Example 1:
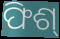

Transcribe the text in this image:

ଫିଶ୍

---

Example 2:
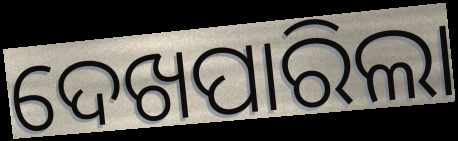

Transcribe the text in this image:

ଦେଖପାରିଲା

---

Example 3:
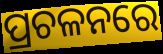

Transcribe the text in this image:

ପ୍ରଚଳନରେ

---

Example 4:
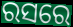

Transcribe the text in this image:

ରସରେ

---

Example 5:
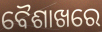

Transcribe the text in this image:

ବୈଶାଖରେ